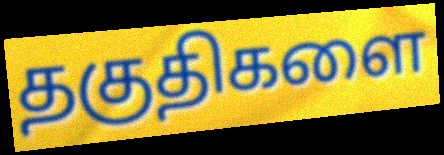
தகுதிகளை